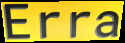
Erra